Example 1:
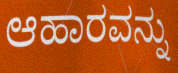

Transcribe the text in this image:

ಆಹಾರವನ್ನು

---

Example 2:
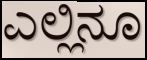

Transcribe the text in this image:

ಎಲ್ಲಿನೂ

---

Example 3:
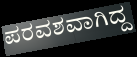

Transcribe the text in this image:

ಪರವಶವಾಗಿದ್ದ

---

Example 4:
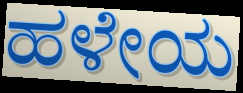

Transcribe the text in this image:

ಹಳೇಯ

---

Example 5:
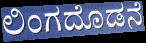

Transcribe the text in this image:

ಲಿಂಗದೊಡನೆ